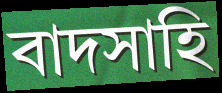
বাদসাহি